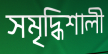
সমৃদ্ধিশালী